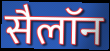
सैलॉन